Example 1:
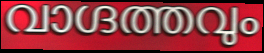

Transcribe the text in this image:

വാഗ്ദത്തവും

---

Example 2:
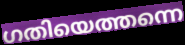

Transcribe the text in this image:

ഗതിയെത്തന്നെ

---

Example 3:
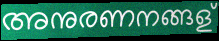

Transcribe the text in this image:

അനുരണനങ്ങള്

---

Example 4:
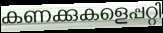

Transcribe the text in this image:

കണക്കുകളെപ്പറ്റി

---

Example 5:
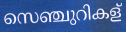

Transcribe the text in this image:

സെഞ്ചുറികള്